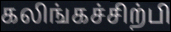
கலிங்கச்சிற்பி